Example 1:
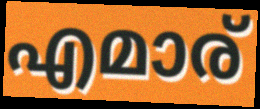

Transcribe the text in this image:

എമാര്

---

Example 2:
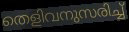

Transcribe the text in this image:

തെളിവനുസരിച്ച്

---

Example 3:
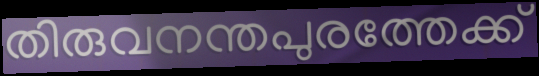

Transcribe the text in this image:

തിരുവനന്തപുരത്തേക്ക്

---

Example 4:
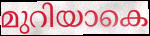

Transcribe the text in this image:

മുറിയാകെ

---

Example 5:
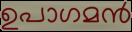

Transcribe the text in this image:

ഉപാഗമൻ